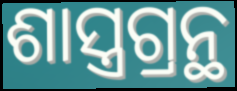
ଶାସ୍ତ୍ରଗ୍ରନ୍ଥ